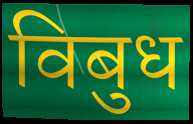
विबुध